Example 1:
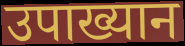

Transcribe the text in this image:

उपाख्यान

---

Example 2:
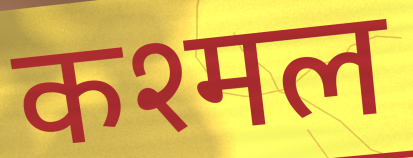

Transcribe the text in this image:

कश्मल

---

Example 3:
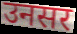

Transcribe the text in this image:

उनसर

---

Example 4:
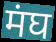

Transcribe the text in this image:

मंघ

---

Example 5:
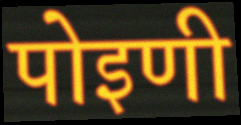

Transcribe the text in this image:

पोइणी